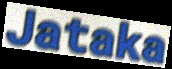
Jataka